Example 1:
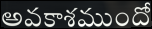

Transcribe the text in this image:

అవకాశముందో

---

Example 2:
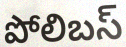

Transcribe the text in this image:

పోలిబస్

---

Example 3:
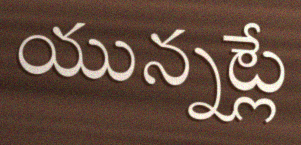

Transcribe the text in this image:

యున్నట్లే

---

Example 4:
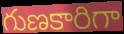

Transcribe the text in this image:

గుణకారిగా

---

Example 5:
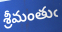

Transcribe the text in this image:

శ్రీమంతుఁ